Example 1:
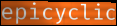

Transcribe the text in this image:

epicyclic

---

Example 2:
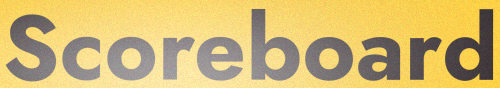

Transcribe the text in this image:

Scoreboard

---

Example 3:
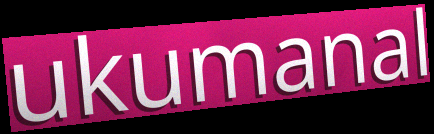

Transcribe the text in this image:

ukumanal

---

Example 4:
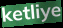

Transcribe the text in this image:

ketliye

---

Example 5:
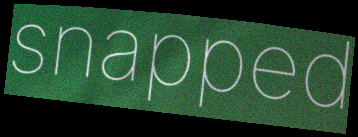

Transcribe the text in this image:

snapped